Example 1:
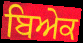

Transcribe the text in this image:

ਬਿਅੇਕ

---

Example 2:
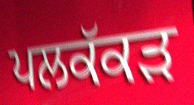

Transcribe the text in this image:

ਪਲਕੱਕੜ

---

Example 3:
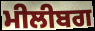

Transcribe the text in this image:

ਮੀਲੀਬਗ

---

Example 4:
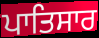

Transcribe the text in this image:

ਪਾਤਿਸਾਰ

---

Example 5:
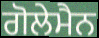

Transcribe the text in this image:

ਗੋਲੇਮੈਨ